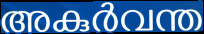
അകുർവന്ത